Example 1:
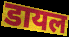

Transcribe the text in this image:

डायल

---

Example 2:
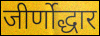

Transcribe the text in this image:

जीर्णोद्धार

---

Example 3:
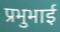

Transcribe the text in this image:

प्रभुभाई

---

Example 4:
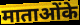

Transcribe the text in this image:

माताओंके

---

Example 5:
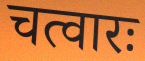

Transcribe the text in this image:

चत्वारः